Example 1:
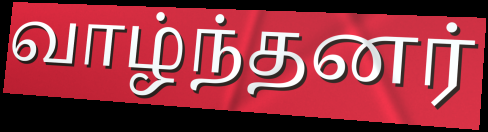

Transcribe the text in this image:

வாழ்ந்தனர்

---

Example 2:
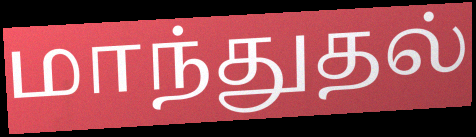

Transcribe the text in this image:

மாந்துதல்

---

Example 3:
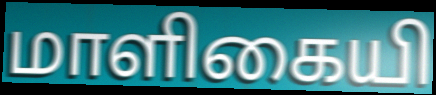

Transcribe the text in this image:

மாளிகையி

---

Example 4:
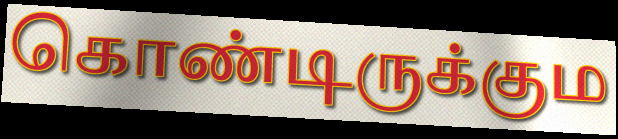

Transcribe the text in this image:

கொண்டிருக்கும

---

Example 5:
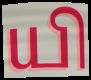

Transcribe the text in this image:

யி